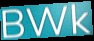
BWk